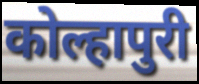
कोल्हापुरी